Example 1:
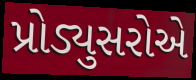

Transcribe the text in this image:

પ્રોડ્યુસરોએ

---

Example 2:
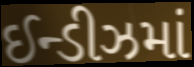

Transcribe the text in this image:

ઈન્ડીઝમાં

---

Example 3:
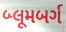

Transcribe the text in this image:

બ્લૂમબર્ગ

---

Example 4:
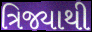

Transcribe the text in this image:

ત્રિજ્યાથી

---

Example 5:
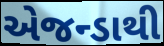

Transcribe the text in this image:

એજન્ડાથી